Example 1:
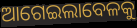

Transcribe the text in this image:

ଆଗେଇଲାବେଳକୁ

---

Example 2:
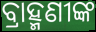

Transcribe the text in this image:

ବ୍ରାହ୍ମଣୀଙ୍କ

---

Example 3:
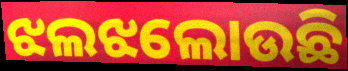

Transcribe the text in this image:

ଝଲଝଲୋଉଛି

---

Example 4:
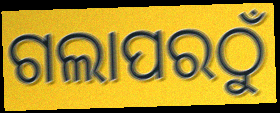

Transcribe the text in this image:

ଗଲାପରଠୁଁ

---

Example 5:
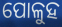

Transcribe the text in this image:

ପୋଳୁହ